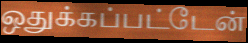
ஒதுக்கப்பட்டேன்